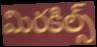
మిరకిల్స్